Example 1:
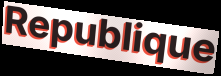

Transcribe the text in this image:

Republique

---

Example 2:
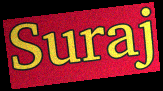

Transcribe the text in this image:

Suraj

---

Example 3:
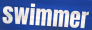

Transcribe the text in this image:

swimmer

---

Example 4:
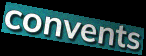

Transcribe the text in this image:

convents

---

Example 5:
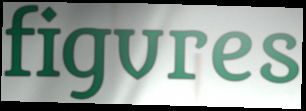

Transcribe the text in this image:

figures